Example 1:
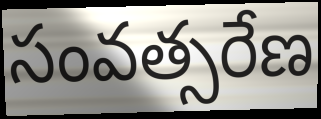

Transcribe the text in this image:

సంవత్సరేణ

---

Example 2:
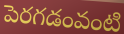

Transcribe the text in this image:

పెరగడంవంటి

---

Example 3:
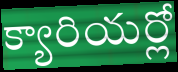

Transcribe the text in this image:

క్యారియర్లో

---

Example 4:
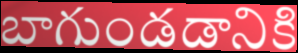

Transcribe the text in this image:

బాగుండడానికి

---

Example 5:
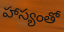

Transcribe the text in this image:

హాస్యంతో